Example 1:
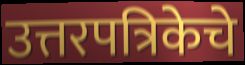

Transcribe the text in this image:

उत्तरपत्रिकेचे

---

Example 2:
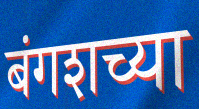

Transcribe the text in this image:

बंगशच्या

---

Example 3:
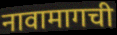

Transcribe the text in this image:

नावामागची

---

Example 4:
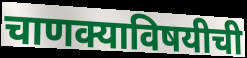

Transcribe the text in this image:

चाणक्याविषयीची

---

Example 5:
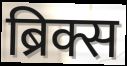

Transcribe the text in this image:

ब्रिक्स